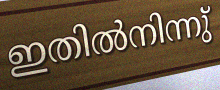
ഇതിൽനിന്നു്